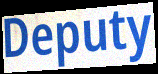
Deputy